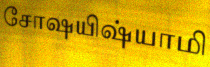
சோஷயிஷ்யாமி